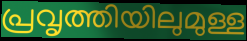
പ്രവൃത്തിയിലുമുള്ള